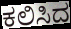
ಕಲಿಸಿದ